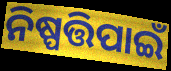
ନିଷ୍ପତ୍ତିପାଇଁ